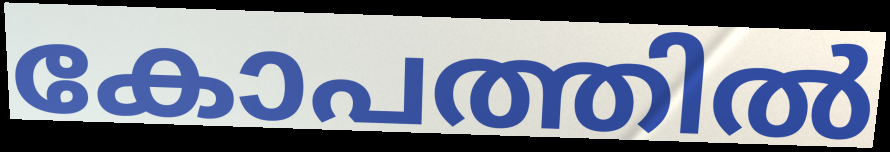
കോപത്തിൽ